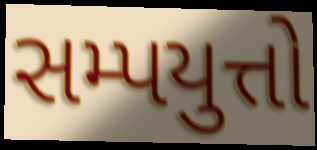
સમ્પયુત્તો